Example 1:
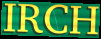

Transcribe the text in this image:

IRCH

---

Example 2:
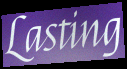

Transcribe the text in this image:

Lasting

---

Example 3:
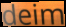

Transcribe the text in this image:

deim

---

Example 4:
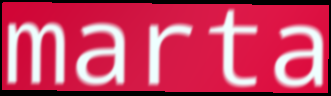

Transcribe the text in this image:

marta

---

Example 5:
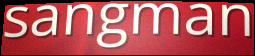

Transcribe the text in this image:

sangman